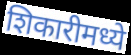
शिकारीमध्ये